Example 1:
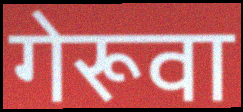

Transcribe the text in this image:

गेरूवा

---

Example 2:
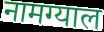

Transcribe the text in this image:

नामग्याल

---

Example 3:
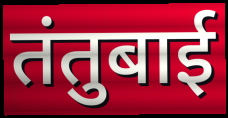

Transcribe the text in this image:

तंतुबाई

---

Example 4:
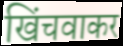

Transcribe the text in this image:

खिंचवाकर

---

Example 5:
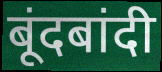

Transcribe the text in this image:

बूंदबांदी